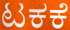
ಟಕಕೆ